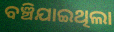
ବଞ୍ଚିଯାଇଥିଲା